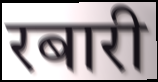
रबारी